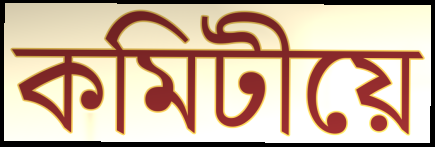
কমিটীয়ে